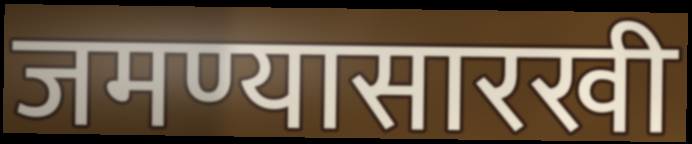
जमण्यासारखी